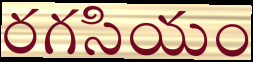
రగసియం